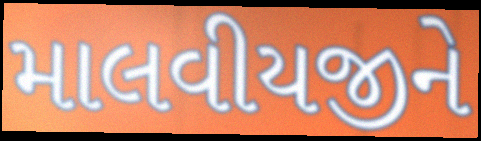
માલવીયજીને